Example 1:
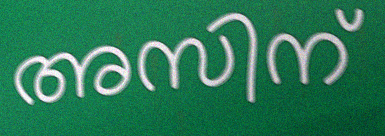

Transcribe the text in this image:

അസിന്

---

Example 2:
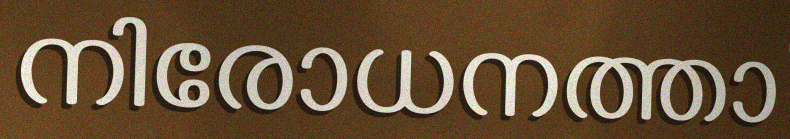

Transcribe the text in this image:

നിരോധനത്താ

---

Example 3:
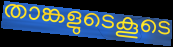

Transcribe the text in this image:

താങ്കളുടെകൂടെ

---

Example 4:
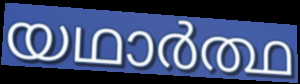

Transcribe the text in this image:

യഥാർത്ഥ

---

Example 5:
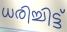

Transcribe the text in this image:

ധരിച്ചിട്ട്